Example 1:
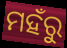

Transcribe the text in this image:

ମହଁରୁ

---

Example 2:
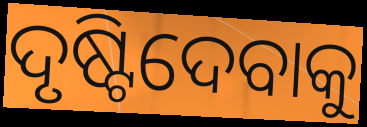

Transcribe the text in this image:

ଦୃଷ୍ଟିଦେବାକୁ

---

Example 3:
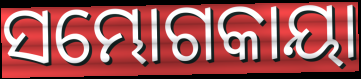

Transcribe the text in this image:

ସମ୍ଭୋଗକାୟା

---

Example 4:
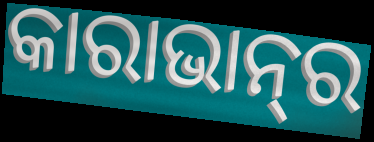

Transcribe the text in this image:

କାରାଭାନ୍‍ର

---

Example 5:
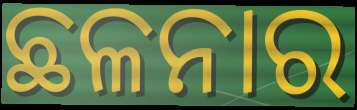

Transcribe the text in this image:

ଛଳନାର